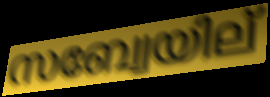
സബ്വേയില്